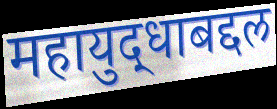
महायुद्धाबद्दल